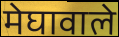
मेघावाले